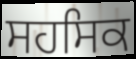
ਸਹਸਿਕ